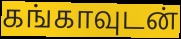
கங்காவுடன்